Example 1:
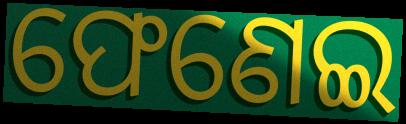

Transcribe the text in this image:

ଫେଣେଇ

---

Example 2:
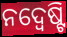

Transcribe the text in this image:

ନଦ୍ୱେଷ୍ଟି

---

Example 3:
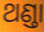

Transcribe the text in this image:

ଥଣ୍ଡା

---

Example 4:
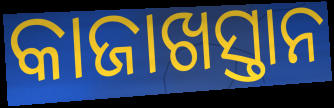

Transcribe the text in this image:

କାଜାଖସ୍ତାନ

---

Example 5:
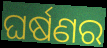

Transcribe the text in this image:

ଘର୍ଷଣର